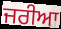
ਜਰੀਆ